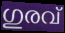
ഗുരവ്